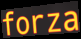
forza